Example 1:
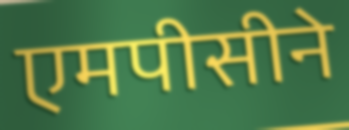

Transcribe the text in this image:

एमपीसीने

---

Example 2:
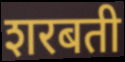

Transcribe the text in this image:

शरबती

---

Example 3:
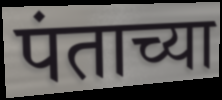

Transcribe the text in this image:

पंताच्या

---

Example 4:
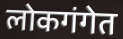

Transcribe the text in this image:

लोकगंगेत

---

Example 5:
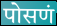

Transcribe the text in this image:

पोसणं